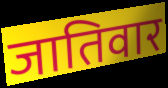
जातिवार